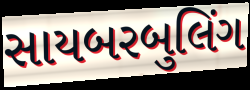
સાયબરબુલિંગ